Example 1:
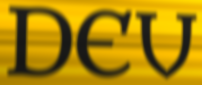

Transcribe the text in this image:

DEU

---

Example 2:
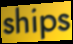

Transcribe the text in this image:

ships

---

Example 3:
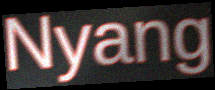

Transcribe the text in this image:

Nyang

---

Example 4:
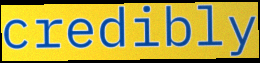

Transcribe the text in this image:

credibly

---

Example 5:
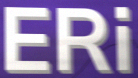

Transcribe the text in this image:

ERi